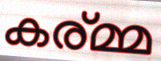
കര്മ്മ